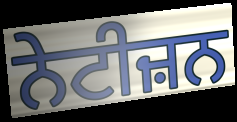
ਨੇਟੀਜ਼ਨ